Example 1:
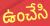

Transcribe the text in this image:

ఉంచేసి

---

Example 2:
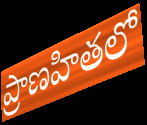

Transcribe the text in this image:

ప్రాణహితలో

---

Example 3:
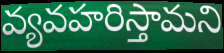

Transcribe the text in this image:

వ్యవహరిస్తామని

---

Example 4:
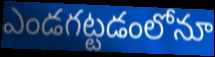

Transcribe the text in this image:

ఎండగట్టడంలోనూ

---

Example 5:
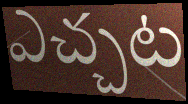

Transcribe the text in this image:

ఎచ్చట